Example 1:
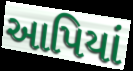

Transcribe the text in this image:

આપિયાં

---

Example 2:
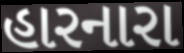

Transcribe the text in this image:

હારનારા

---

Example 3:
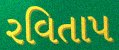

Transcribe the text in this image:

રવિતાપ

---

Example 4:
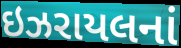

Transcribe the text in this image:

ઇઝરાયલનાં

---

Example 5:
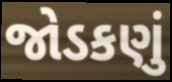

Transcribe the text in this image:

જોડકણું